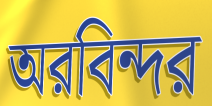
অরবিন্দর